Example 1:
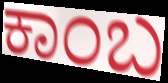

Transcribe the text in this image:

ಕಾಂಬ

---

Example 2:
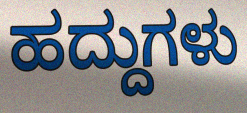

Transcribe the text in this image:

ಹದ್ದುಗಳು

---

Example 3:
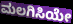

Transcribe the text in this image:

ಮಲಗಿಸಿಯೇ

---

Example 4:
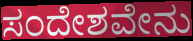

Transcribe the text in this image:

ಸಂದೇಶವೇನು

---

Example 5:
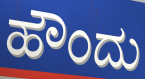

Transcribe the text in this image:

ಹೌಂದು